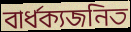
বার্ধক্যজনিত